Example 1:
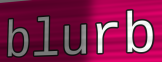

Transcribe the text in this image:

blurb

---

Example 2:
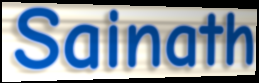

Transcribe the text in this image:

Sainath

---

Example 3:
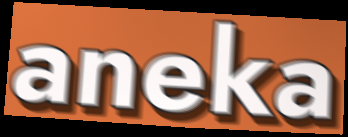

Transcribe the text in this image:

aneka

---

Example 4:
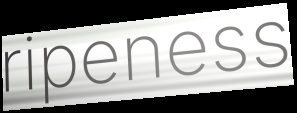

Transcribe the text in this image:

ripeness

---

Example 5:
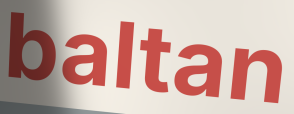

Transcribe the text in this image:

baltan